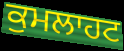
ਕੁਮਲਾਹਟ